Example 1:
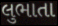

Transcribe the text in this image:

લુભાતા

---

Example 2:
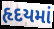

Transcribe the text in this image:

હૃદયમાં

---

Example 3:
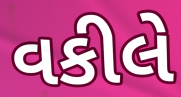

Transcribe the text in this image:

વકીલે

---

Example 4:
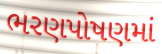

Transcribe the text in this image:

ભરણપોષણમાં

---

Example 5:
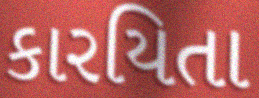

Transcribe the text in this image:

કારયિતા